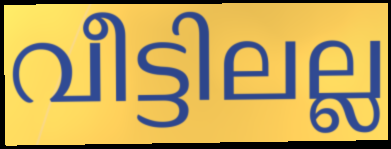
വീട്ടിലല്ല